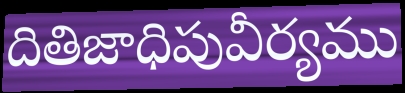
దితిజాధిపువీర్యము